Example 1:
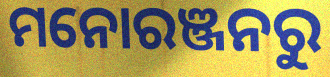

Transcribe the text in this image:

ମନୋରଞ୍ଜନରୁ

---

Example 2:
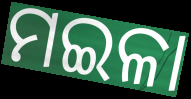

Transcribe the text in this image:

ମଇଳା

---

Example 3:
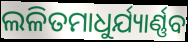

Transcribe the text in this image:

ଲଳିତମାଧୁର୍ଯ୍ୟାର୍ଣ୍ଣବ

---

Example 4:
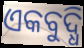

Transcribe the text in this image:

ଏକବୁଦ୍ଧି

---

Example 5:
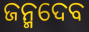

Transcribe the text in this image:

ଜନ୍ମଦେବ